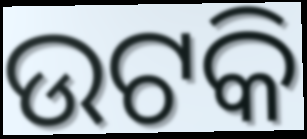
ଉଟକି